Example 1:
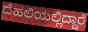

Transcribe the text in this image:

ದೆಹಲಿಯಲ್ಲಿದ್ದಾರೆ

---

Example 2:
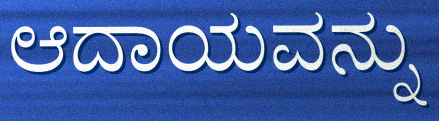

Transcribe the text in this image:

ಆದಾಯವನ್ನು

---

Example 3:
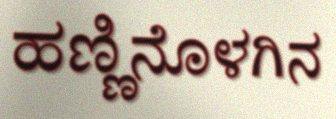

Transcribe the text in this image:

ಹಣ್ಣಿನೊಳಗಿನ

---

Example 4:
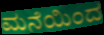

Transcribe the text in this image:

ಮನೆಯಿಂದ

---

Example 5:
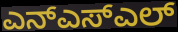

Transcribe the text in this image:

ಎನ್ಎಸ್ಎಲ್